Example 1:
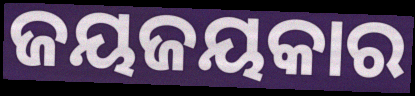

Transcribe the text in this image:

ଜୟଜୟକାର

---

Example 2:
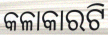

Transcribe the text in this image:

କଳାକାରଟି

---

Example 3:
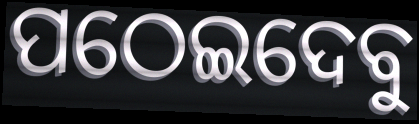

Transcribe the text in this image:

ପଠେଇଦେବୁ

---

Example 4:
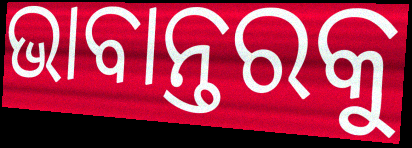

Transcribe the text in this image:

ଭାବାନ୍ତରକୁ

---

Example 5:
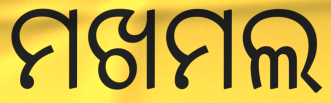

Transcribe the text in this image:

ମଖମଲ